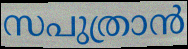
സപുത്രാൻ